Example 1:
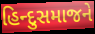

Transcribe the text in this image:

હિન્દુસમાજને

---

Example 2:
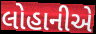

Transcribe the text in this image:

લોહાનીએ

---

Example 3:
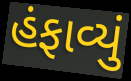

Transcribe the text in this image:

હંફાવ્યું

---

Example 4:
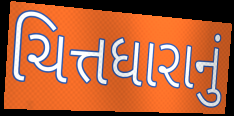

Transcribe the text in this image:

ચિત્તધારાનું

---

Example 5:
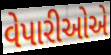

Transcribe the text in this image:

વેપારીઓએ